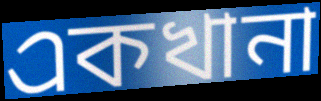
একখানা